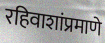
रहिवाशांप्रमाणे